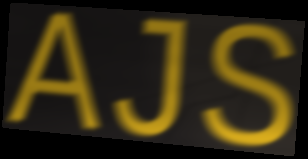
AJS